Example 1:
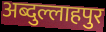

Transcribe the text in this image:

अब्दुल्लाहपुर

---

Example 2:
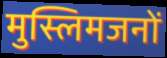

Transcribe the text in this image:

मुस्लिमजनों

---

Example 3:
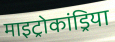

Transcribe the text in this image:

माइट्रोकांड्रिया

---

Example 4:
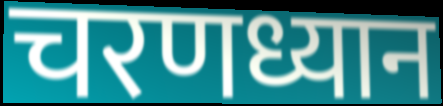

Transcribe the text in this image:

चरणध्यान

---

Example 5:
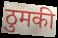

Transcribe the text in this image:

ठुमकी